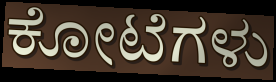
ಕೋಟೆಗಳು